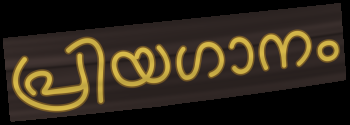
പ്രിയഗാനം